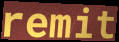
remit